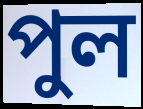
পুল